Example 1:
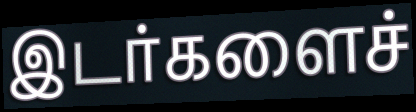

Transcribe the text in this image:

இடர்களைச்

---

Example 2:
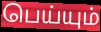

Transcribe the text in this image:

பெய்யும்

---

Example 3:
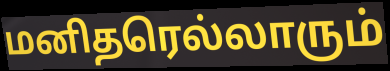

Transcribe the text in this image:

மனிதரெல்லாரும்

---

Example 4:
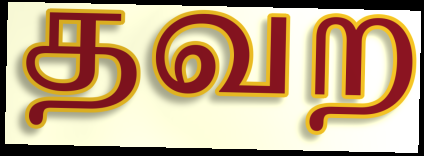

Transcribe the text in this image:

தவற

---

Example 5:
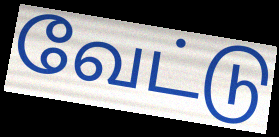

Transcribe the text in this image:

வேட்டு